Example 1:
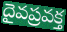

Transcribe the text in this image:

దైవప్రవక్త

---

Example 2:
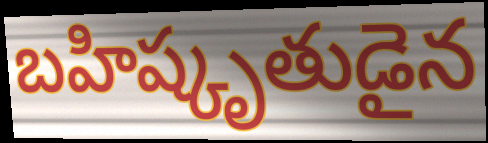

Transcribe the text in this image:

బహిష్కృతుడైన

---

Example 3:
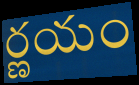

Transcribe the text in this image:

ర్ణయం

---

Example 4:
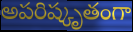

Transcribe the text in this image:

అపరిష్కృతంగా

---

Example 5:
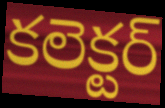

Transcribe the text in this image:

కలెక్టర్